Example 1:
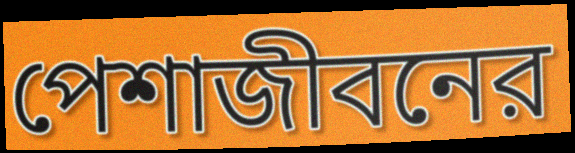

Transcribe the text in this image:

পেশাজীবনের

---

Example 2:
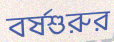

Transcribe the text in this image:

বর্ষশুরুর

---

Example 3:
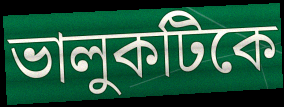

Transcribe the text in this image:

ভালুকটিকে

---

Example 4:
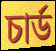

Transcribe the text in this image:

চার্ড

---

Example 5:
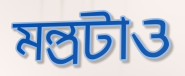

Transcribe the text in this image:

মন্ত্রটাও